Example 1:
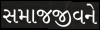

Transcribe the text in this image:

સમાજજીવને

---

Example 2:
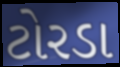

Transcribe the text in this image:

ટોરડા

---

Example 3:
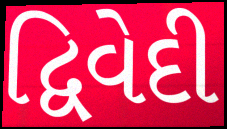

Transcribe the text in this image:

દ્વિવેદી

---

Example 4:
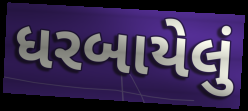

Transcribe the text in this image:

ધરબાયેલું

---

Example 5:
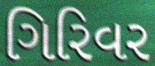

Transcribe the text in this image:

ગિરિવર